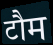
टौम